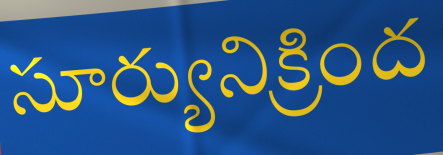
సూర్యునిక్రింద